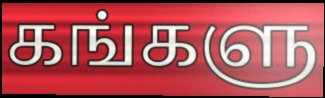
கங்களு